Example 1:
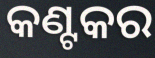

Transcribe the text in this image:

କଣ୍ଟକର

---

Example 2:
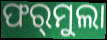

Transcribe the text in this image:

ଫର୍‌ମୁଲା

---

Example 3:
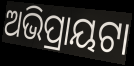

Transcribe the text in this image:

ଅଭିପ୍ରାୟଟା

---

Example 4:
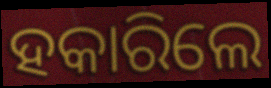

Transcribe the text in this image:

ହକାରିଲେ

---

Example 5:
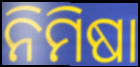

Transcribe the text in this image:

ନିମିଷା